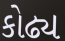
કોઢ્ય